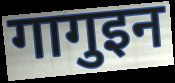
गागुइन